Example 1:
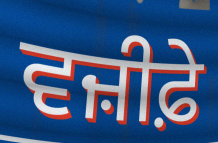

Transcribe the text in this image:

ਵਜ਼ੀਫ਼ੇ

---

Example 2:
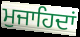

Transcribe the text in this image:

ਮੁਜਾਹਿਦਾਂ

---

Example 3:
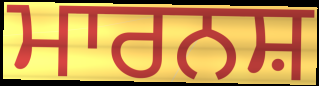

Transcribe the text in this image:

ਮਾਰਨਸ਼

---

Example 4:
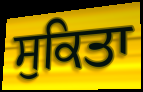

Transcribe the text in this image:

ਸੁਕਿਤਾ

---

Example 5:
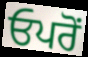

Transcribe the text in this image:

ਓਪਰੋਂ